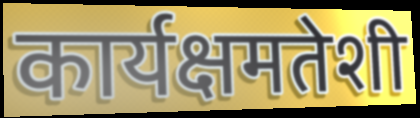
कार्यक्षमतेशी